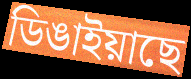
ডিঙাইয়াছে